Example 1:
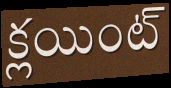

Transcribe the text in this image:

క్లయింట్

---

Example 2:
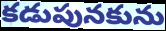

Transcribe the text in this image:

కడుపునకును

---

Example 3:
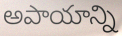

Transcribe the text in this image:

అపాయాన్ని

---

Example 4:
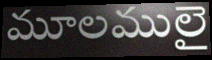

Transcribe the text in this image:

మూలములై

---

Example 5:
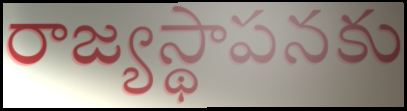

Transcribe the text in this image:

రాజ్యస్థాపనకు